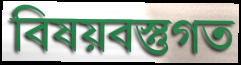
বিষয়বস্তুগত